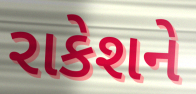
રાકેશને